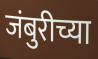
जंबुरीच्या